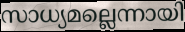
സാധ്യമല്ലെന്നായി